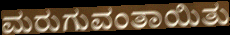
ಮರುಗುವಂತಾಯಿತು